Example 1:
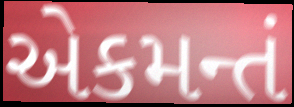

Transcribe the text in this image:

એકમન્તં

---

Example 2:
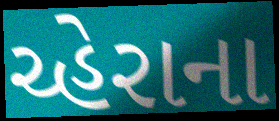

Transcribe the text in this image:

ચ્હેરાના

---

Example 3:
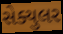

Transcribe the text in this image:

સેક્યુલર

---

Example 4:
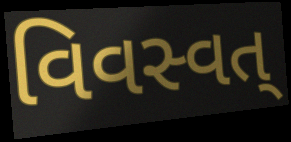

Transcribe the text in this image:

વિવસ્વત્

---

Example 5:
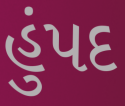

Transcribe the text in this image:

હુંપદ